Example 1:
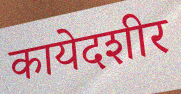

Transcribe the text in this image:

कायेदशीर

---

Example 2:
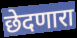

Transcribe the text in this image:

छेदणारा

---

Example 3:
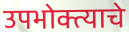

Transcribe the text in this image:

उपभोक्त्याचे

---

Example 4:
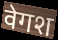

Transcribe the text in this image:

वेगश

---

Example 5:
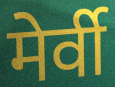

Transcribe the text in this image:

मेर्वी